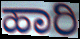
ಹಾರಿ